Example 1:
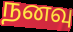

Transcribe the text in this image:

நனவு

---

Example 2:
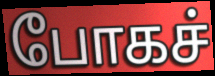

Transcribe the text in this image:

போகச்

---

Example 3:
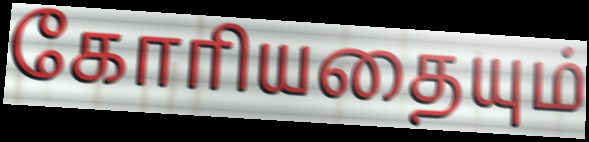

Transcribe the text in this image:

கோரியதையும்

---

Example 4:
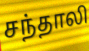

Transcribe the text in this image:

சந்தாலி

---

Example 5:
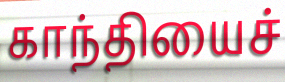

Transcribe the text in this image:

காந்தியைச்